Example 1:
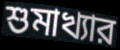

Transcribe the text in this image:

শুমাখ্যার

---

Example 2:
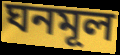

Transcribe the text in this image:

ঘনমূল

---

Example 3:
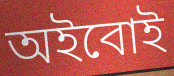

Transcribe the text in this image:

অইবোই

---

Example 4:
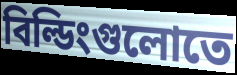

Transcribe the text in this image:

বিল্ডিংগুলোতে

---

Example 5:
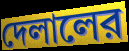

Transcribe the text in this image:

দেলালের